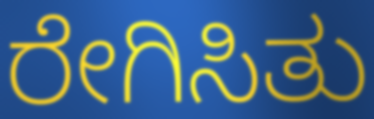
ರೇಗಿಸಿತು